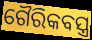
ଗୈରିକବସ୍ତ୍ର